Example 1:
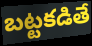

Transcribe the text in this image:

బట్టకడితే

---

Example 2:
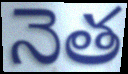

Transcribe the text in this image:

నెత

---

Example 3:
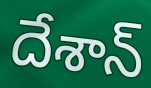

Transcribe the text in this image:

దేశాన్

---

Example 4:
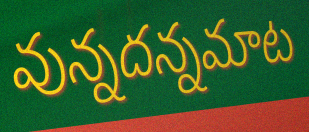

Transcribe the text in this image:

వున్నదన్నమాట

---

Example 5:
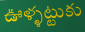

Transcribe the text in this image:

ఊళ్ళట్టుకు